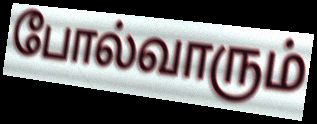
போல்வாரும்